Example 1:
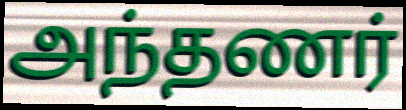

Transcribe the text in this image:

அந்தணர்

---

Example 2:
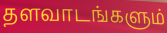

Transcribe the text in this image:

தளவாடங்களும்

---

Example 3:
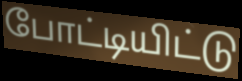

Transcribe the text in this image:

போட்டியிட்டு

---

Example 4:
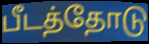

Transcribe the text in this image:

பீடத்தோடு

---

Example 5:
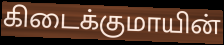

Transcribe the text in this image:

கிடைக்குமாயின்